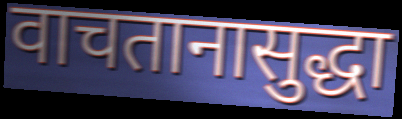
वाचतानासुद्धा